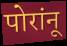
पोरांनू